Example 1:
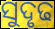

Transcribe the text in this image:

ସୁଦୃଢ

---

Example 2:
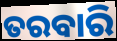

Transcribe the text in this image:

ତରବାରି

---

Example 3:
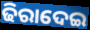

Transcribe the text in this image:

ଢିରାଦେଇ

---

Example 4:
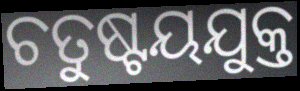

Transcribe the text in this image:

ଚତୁଷ୍ଟୟଯୁକ୍ତ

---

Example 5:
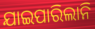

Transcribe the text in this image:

ଯାଇପାରିଲାନି